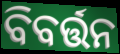
ବିବର୍ତ୍ତନ